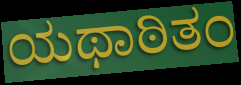
ಯಥಾಠಿತಂ